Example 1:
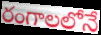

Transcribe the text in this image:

రంగాలలోనే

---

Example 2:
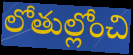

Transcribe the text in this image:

లోతుల్లోంచి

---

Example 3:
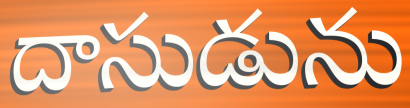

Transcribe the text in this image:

దాసుడును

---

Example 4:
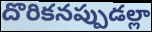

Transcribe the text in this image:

దొరికనప్పుడల్లా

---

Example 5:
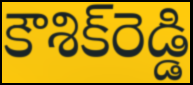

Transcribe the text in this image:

కౌశిక్‌రెడ్డి